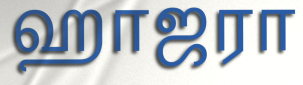
ஹாஜரா